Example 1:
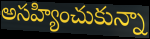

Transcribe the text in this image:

అసహ్యించుకున్నా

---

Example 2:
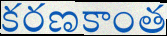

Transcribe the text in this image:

కరణకాంత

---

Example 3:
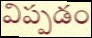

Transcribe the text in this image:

విప్పడం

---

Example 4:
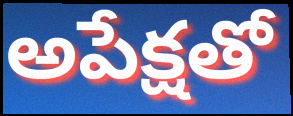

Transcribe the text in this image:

అపేక్షతో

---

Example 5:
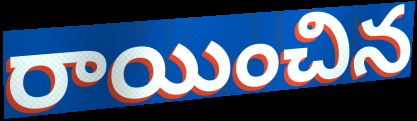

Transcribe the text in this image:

రాయించిన